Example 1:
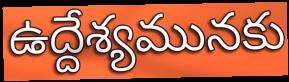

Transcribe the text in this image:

ఉద్దేశ్యమునకు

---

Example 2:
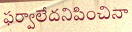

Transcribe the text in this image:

ఫర్వాలేదనిపించినా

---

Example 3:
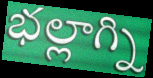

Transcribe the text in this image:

భల్లాగ్ని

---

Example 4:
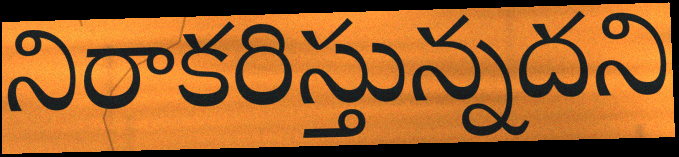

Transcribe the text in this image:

నిరాకరిస్తున్నదని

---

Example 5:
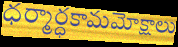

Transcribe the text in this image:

ధర్మార్ధకామమోక్షాలు